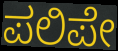
ಪಲಿಪೇ